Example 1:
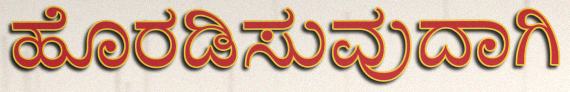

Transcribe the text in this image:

ಹೊರಡಿಸುವುದಾಗಿ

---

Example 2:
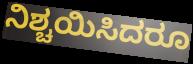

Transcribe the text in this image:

ನಿಶ್ಚಯಿಸಿದರೂ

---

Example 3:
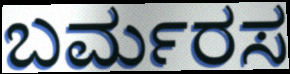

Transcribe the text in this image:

ಬರ್ಮರಸ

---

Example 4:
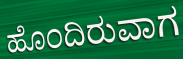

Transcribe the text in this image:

ಹೊಂದಿರುವಾಗ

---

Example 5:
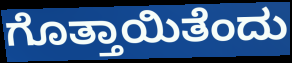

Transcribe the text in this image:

ಗೊತ್ತಾಯಿತೆಂದು